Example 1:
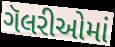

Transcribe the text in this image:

ગૅલરીઓમાં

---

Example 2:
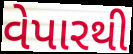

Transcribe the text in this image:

વેપારથી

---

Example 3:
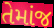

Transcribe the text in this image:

તેમાંજ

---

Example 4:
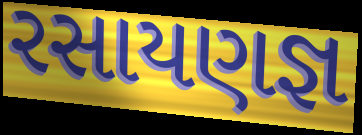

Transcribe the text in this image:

રસાયણજ્ઞ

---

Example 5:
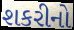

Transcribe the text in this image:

શકરીનો